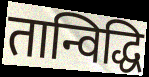
तान्विद्धि